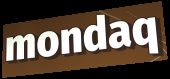
mondaq